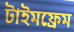
টাইমফ্রেম